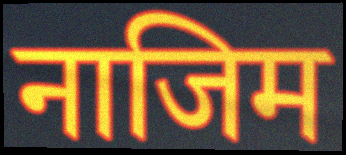
नाजिम